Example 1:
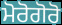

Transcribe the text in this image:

ਮੋਰੋਗੋਰੋ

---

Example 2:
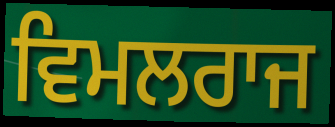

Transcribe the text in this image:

ਵਿਮਲਰਾਜ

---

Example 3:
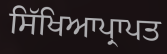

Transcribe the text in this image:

ਸਿੱਖਿਆਪ੍ਰਾਪਤ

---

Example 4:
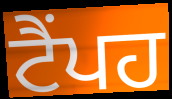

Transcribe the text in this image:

ਟੈਂਪਹ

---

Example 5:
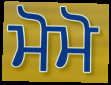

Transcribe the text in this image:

ਮੋਮੋ